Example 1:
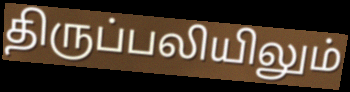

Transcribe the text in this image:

திருப்பலியிலும்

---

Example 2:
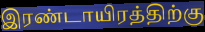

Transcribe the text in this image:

இரண்டாயிரத்திற்கு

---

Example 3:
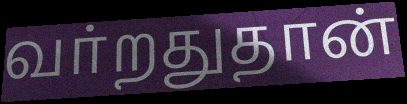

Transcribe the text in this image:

வர்றதுதான்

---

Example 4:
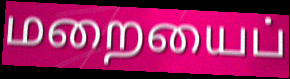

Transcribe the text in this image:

மறையைப்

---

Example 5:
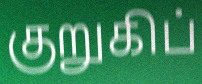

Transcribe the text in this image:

குறுகிப்